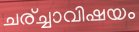
ചര്ച്ചാവിഷയം